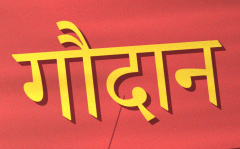
गौदान